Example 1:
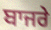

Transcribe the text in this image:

ਬਾਜਰੇ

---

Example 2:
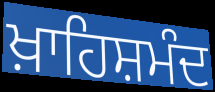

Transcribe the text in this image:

ਖ਼ਾਹਿਸ਼ਮੰਦ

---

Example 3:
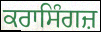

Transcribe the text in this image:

ਕਰਾਸਿੰਗਜ਼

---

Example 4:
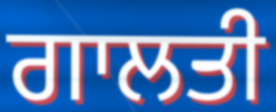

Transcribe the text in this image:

ਗਾਲਤੀ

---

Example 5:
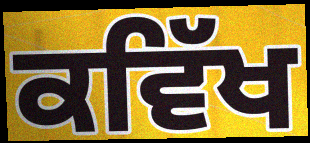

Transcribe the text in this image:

ਕਵਿੱਖ